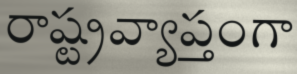
రాష్ట్రవ్యాప్తంగా